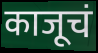
काजूचं